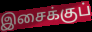
இசைக்குப்